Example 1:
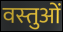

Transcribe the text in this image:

वस्‍तुओं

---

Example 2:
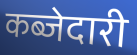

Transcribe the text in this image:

कब्जेदारी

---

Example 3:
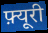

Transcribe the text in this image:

फ़्यूरी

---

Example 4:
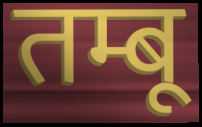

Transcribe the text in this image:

तम्‍बू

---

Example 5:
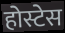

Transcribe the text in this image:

होस्टेस